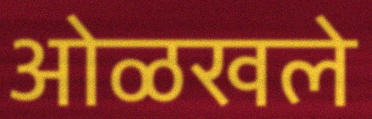
ओळखले